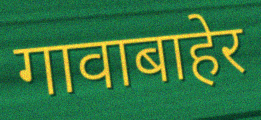
गावाबाहेर